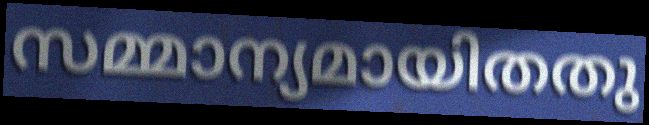
സമ്മാന്യമായിതതു